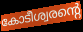
കോടീശ്വരന്റെ